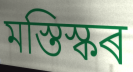
মস্তিস্কৰ